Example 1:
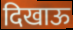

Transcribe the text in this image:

दिखाऊ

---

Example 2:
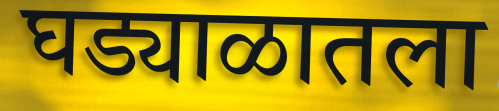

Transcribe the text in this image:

घड्याळातला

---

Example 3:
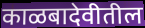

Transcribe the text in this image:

काळबादेवीतील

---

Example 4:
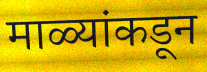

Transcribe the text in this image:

माळ्यांकडून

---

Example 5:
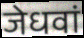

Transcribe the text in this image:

जेधवां